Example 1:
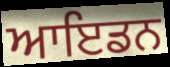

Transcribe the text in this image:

ਆਇਡਨ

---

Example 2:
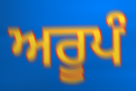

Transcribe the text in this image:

ਅਰੂਪੰ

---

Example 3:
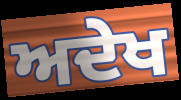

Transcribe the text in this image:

ਅਦੇਖ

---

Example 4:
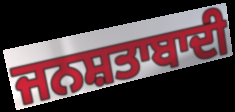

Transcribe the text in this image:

ਜਨਸ਼ਤਾਬਾਦੀ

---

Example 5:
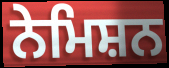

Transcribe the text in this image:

ਨੇਮਿਸ਼ਨ